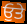
ਓੁਤੇ